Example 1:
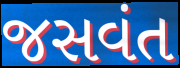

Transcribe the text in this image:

જસવંત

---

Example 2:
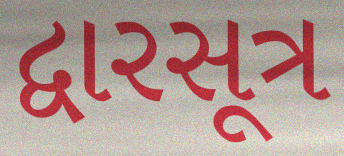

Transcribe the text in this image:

દ્વારસૂત્ર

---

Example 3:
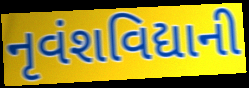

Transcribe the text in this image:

નૃવંશવિદ્યાની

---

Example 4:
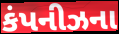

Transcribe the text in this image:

કંપનીઝના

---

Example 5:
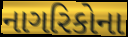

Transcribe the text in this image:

નાગરિકોના